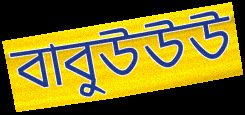
বাবুউউউ